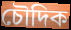
চৌদিক